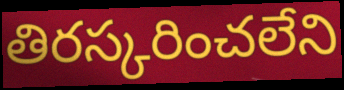
తిరస్కరించలేని